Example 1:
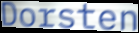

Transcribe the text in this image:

Dorsten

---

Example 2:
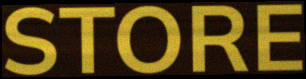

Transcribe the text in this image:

STORE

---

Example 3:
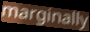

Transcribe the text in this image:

marginally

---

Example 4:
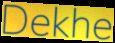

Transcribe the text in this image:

Dekhe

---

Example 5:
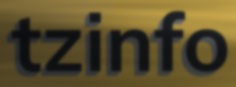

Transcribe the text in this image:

tzinfo